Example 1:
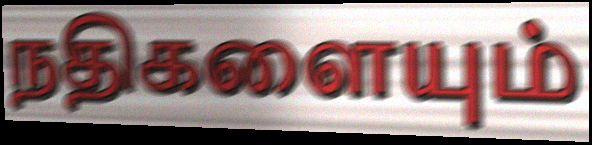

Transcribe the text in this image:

நதிகளையும்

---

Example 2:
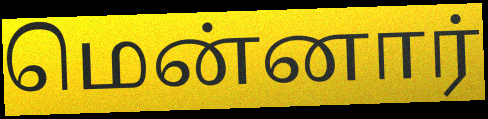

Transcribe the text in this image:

மென்னார்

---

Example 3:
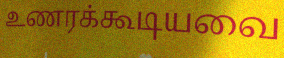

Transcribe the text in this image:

உணரக்கூடியவை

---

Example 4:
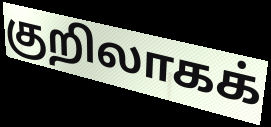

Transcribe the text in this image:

குறிலாகக்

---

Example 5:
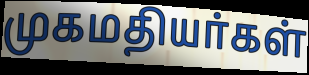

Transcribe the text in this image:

முகமதியர்கள்